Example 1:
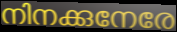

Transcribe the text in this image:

നിനക്കുനേരേ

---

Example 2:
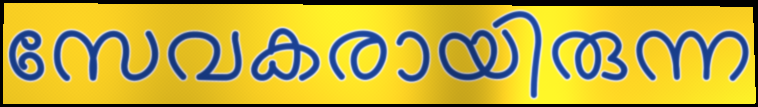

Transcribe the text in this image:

സേവകരായിരുന്ന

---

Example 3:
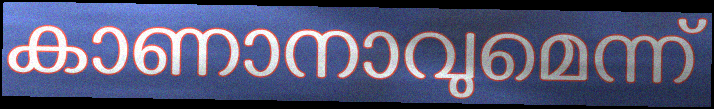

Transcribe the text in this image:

കാണാനാവുമെന്ന്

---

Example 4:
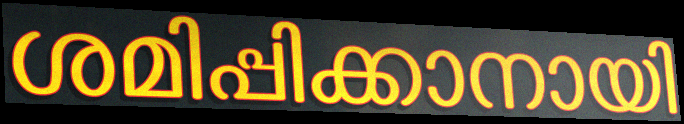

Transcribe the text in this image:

ശമിപ്പിക്കാനായി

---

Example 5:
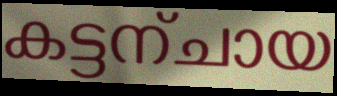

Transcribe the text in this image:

കട്ടന്ചായ